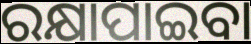
ରକ୍ଷାପାଇବା